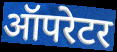
ऑपरेटर